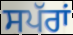
ਸਪੱਰਾਂ